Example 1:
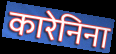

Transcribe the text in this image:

कारेनिना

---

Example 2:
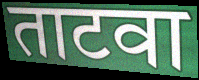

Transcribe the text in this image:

ताटवा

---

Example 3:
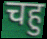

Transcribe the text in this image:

चहु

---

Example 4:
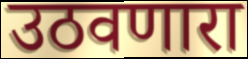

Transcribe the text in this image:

उठवणारा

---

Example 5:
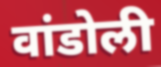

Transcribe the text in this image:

वांडोली